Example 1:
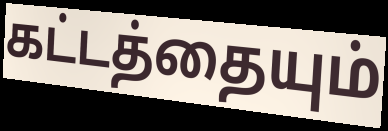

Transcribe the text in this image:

கட்டத்தையும்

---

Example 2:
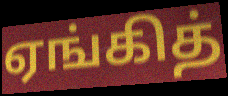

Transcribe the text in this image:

ஏங்கித்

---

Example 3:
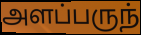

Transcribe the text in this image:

அளப்பருந்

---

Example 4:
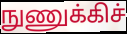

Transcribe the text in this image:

நுணுக்கிச்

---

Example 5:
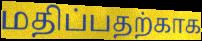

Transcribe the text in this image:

மதிப்பதற்காக